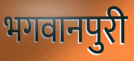
भगवानपुरी